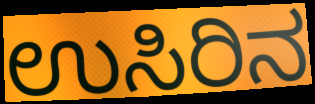
ಉಸಿರಿನ